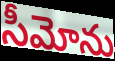
సీమోను